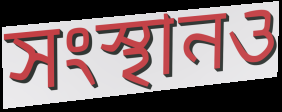
সংস্থানও